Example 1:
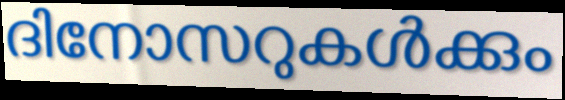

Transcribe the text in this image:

ദിനോസറുകൾക്കും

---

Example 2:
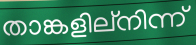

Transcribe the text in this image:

താങ്കളില്നിന്ന്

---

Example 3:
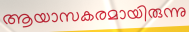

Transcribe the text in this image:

ആയാസകരമായിരുന്നു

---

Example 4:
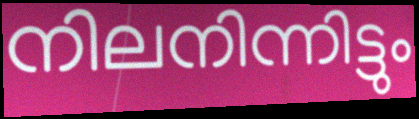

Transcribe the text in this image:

നിലനിന്നിട്ടും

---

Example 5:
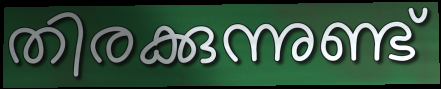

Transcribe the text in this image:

തിരക്കുന്നുണ്ട്